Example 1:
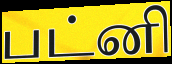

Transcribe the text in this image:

பட்னி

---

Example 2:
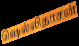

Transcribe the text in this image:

ஷெல்லிதாசன்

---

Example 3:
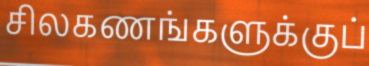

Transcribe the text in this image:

சிலகணங்களுக்குப்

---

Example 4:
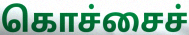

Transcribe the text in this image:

கொச்சைச்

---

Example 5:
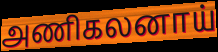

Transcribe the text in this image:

அணிகலனாய்